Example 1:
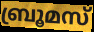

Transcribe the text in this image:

ബ്രൂമസ്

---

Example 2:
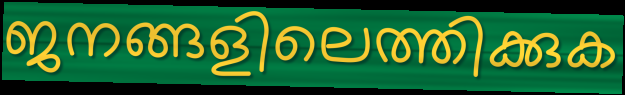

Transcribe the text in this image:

ജനങ്ങളിലെത്തിക്കുക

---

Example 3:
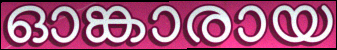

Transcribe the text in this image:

ഓങ്കാരായ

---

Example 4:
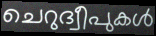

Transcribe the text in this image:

ചെറുദ്വീപുകൾ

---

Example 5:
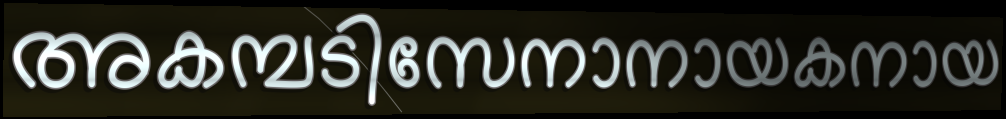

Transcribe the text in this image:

അകമ്പടിസേനാനായകനായ